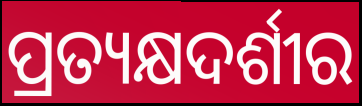
ପ୍ରତ୍ୟକ୍ଷଦର୍ଶୀର